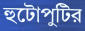
হুটোপুটির